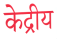
केद्रीय